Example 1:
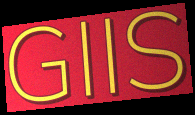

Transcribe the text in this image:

GIIS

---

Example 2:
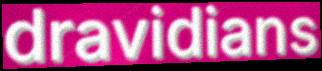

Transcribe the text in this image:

dravidians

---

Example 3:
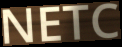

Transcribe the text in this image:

NETC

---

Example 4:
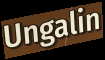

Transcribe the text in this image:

Ungalin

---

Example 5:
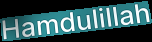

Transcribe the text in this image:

Hamdulillah